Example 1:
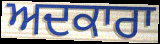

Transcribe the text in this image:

ਅਦਕਾਰਾ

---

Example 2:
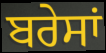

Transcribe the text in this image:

ਬਰੇਸਾਂ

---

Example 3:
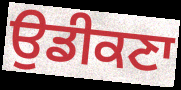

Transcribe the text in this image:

ਉਡੀਕਣਾ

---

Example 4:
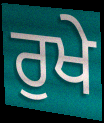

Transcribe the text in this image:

ਰੁਖੇ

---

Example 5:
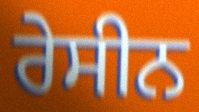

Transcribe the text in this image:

ਰੇਸੀਨ